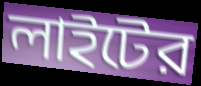
লাইটের